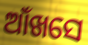
ଆଁଖସେ